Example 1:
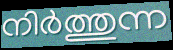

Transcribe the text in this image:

നിർത്തുന്ന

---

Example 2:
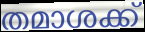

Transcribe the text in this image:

തമാശക്ക്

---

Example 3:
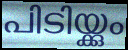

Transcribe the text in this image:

പിടിയ്ക്കും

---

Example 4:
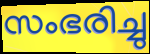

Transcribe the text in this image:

സംഭരിച്ചു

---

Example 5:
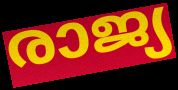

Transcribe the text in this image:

രാജ്യ